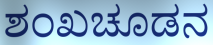
ಶಂಖಚೂಡನ